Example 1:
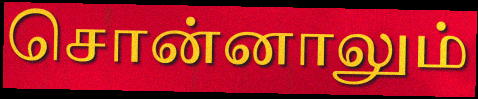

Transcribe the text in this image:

சொன்னாலும்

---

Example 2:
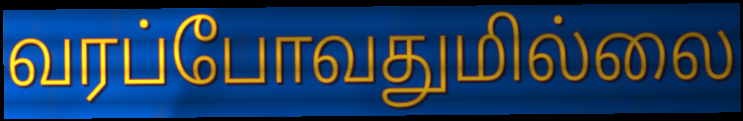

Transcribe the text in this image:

வரப்போவதுமில்லை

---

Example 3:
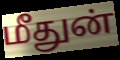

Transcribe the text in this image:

மீதுன்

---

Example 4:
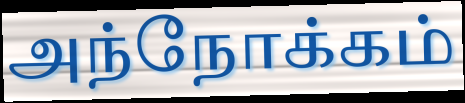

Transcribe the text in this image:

அந்நோக்கம்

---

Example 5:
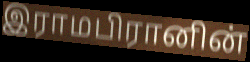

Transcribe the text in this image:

இராமபிரானின்